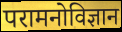
परामनोविज्ञान